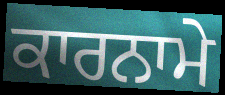
ਕਾਰਨਾਮੇ